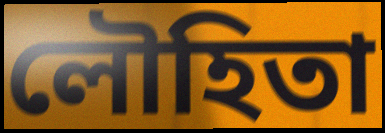
লৌহিতা